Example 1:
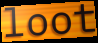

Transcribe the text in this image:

loot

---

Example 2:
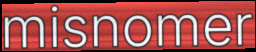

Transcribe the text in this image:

misnomer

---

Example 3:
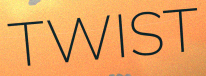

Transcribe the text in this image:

TWIST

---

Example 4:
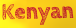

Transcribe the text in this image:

Kenyan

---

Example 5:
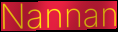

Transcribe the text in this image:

Nannan